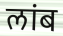
लांब